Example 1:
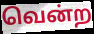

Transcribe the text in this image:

வென்ற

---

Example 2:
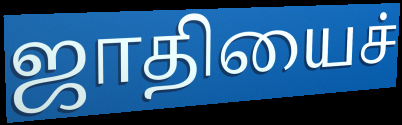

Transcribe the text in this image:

ஜாதியைச்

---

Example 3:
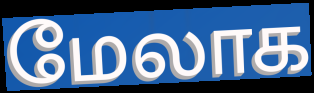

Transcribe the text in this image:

மேலாக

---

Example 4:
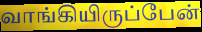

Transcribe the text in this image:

வாங்கியிருப்பேன்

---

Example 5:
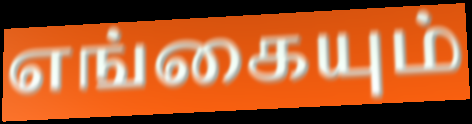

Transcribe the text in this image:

எங்கையும்